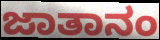
ಜಾತಾನಂ